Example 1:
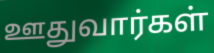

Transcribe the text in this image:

ஊதுவார்கள்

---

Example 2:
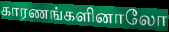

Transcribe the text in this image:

காரணங்களினாலோ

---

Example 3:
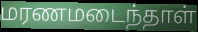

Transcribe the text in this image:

மரணமடைந்தாள்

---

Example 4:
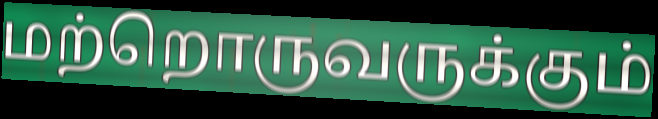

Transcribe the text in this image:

மற்றொருவருக்கும்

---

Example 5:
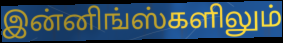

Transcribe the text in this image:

இன்னிங்ஸ்களிலும்